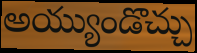
అయ్యుండొచ్చు